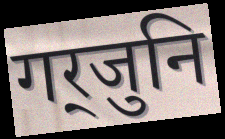
गर्जुनि